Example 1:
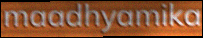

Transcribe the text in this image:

maadhyamika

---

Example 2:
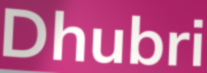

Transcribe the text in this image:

Dhubri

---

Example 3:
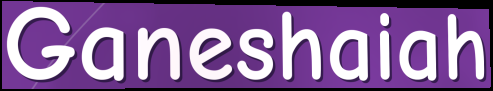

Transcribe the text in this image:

Ganeshaiah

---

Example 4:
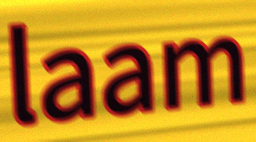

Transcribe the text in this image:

laam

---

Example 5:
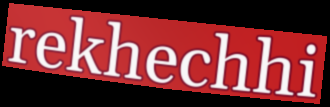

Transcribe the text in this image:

rekhechhi